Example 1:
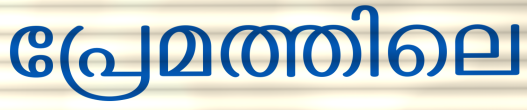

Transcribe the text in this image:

പ്രേമത്തിലെ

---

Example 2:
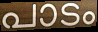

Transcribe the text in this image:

പാടം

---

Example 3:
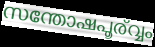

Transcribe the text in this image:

സന്തോഷപൂര്വ്വം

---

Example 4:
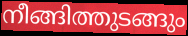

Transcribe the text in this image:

നീങ്ങിത്തുടങ്ങും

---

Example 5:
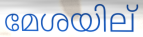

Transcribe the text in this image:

മേശയില്